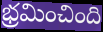
భ్రమించింది